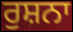
ਰੁਸ਼ਨਾ